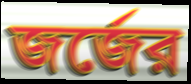
জর্জের